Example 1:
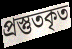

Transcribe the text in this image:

প্রস্তুতকৃত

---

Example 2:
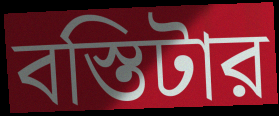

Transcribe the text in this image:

বস্তিটার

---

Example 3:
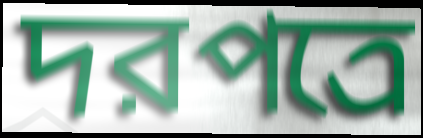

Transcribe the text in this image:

দরপত্রে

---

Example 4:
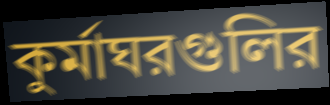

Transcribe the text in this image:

কুর্মাঘরগুলির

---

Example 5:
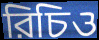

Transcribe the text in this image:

রিচিও